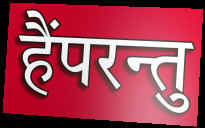
हैंपरन्तु